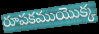
రూపకముయొక్క